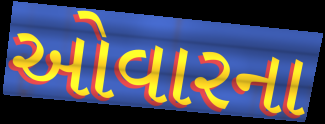
ઓવારના